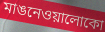
মাঙনেওয়ালোকো